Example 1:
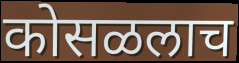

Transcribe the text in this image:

कोसळलाच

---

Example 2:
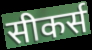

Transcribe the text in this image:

सीकर्स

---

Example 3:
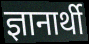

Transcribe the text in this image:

ज्ञानार्थी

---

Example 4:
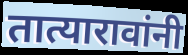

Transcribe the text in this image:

तात्यारावांनी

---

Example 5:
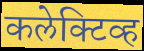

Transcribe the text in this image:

कलेक्टिव्ह